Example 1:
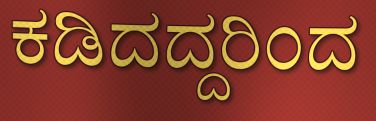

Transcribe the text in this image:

ಕಡಿದದ್ದರಿಂದ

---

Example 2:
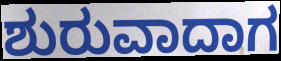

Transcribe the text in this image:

ಶುರುವಾದಾಗ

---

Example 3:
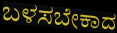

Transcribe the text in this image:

ಬಳಸಬೇಕಾದ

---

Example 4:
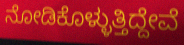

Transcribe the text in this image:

ನೋಡಿಕೊಳ್ಳುತ್ತಿದ್ದೇವೆ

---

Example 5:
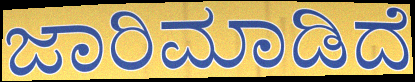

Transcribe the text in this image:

ಜಾರಿಮಾಡಿದೆ